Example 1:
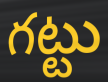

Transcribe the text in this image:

గట్టు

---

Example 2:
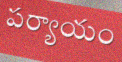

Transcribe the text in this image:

పర్యాయం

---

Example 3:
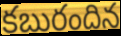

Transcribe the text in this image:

కబురందిన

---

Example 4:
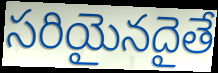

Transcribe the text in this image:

సరియైనదైతే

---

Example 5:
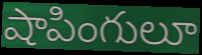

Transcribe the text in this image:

షాపింగులూ